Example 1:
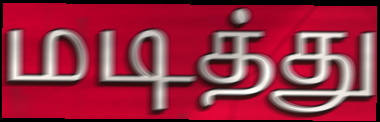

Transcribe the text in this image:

மடித்து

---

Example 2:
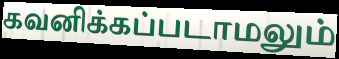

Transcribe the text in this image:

கவனிக்கப்படாமலும்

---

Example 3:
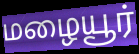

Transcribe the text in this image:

மழையூர்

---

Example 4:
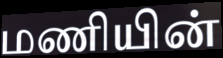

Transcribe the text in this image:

மணியின்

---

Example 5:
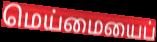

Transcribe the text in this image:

மெய்மையைப்